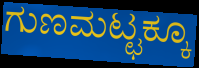
ಗುಣಮಟ್ಟಕ್ಕೂ